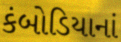
કંબોડિયાનાં